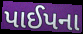
પાઈપના